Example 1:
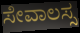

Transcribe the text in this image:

ಸೇವಾಲಸ್ಸ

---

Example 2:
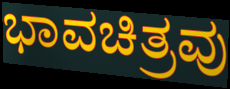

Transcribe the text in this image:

ಭಾವಚಿತ್ರವು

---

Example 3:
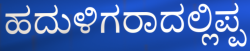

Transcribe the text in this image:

ಹದುಳಿಗರಾದಲ್ಲಿಪ್ಪ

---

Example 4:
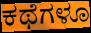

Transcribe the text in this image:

ಕಥೆಗಳೂ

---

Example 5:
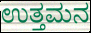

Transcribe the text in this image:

ಉತ್ತಮನ